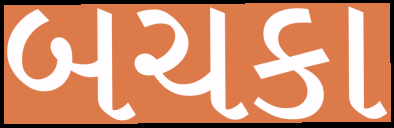
બચકા